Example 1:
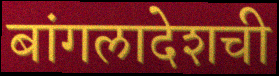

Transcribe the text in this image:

बांगलादेशची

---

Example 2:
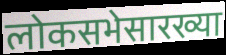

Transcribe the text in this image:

लोकसभेसारख्या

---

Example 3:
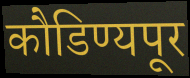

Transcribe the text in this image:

कौडिण्यपूर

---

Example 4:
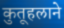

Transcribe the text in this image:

कुतूहलाने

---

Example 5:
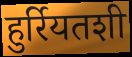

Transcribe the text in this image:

हुर्रियतशी